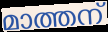
മാത്തന്